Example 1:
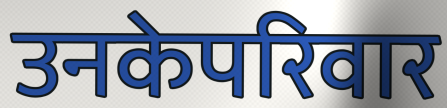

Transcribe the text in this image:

उनकेपरिवार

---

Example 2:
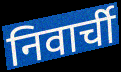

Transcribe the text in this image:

निवार्ची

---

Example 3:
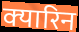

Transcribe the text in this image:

क्यारिन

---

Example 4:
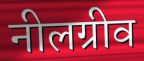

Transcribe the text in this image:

नीलग्रीव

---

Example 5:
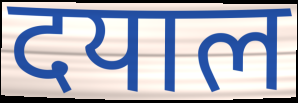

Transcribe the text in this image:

दयाल